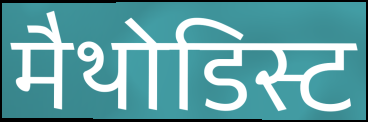
मैथोडिस्ट